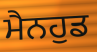
ਮੈਨਹੁਡ